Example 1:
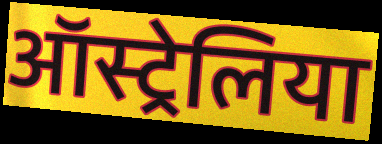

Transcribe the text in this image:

ऑस्ट्रेलिया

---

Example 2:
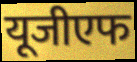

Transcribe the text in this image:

यूजीएफ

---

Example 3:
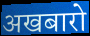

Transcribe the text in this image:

अखबारो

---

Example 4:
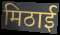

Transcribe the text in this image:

मिठाई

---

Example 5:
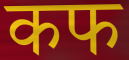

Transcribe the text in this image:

कफ